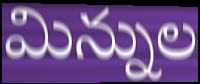
మిన్నుల